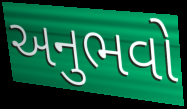
અનુભવો